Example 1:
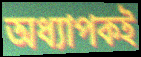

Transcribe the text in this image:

অধ্যাপকই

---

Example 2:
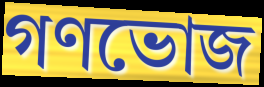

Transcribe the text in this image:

গণভোজ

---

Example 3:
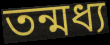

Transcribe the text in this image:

তন্মধ্য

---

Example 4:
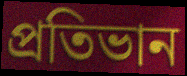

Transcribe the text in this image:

প্রতিভান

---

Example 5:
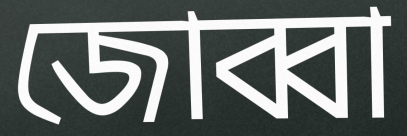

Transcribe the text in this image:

জোব্বা